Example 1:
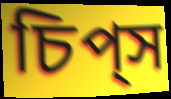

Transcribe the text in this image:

চিপ্‌স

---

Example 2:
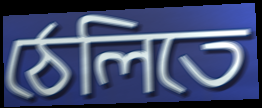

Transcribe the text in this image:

ঠেলিতে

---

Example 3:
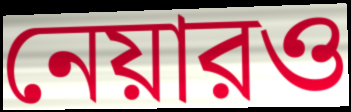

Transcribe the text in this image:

নেয়ারও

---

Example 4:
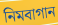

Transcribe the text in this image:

নিমবাগান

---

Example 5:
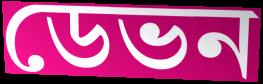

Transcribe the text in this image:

ডেভন